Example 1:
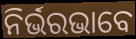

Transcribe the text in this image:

ନିର୍ଭରଭାବେ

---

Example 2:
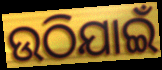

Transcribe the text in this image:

ଉଠିଯାଇଁ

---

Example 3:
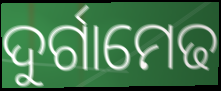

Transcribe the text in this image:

ଦୁର୍ଗାମେଢ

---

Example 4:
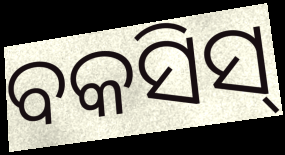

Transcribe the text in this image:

ବକସିସ୍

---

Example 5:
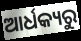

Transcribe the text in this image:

ଆର୍ଧକ୍ୟରୁ